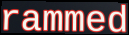
rammed